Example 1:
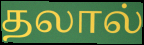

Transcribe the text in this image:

தலால்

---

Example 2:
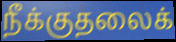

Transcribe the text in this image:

நீக்குதலைக்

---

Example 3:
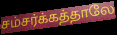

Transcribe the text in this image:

சம்சர்க்கத்தாலே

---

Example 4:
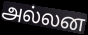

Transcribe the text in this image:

அல்லன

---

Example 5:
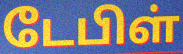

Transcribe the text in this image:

டேபிள்